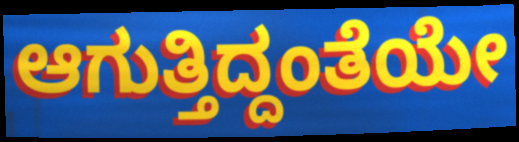
ಆಗುತ್ತಿದ್ದಂತೆಯೇ